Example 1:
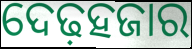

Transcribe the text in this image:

ଦେଢ଼ହଜାର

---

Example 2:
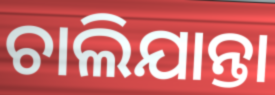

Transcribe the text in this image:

ଚାଲିଯାନ୍ତା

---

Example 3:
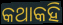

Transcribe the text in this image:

କଥାକହି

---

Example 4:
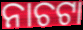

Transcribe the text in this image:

ନାଚଟା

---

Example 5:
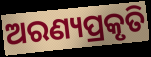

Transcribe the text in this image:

ଅରଣ୍ୟପ୍ରକୃତି